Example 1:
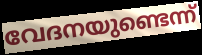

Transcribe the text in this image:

വേദനയുണ്ടെന്ന്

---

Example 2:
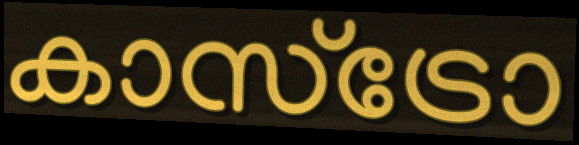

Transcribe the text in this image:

കാസ്ട്രോ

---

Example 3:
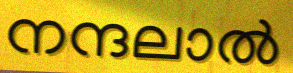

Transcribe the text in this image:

നന്ദലാൽ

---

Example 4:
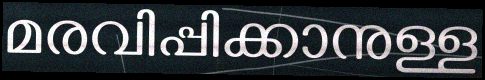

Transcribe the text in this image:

മരവിപ്പിക്കാനുള്ള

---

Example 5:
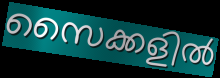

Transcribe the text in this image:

സൈക്കളിൽ